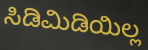
ಸಿಡಿಮಿಡಿಯಿಲ್ಲ